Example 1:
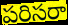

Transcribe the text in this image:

పరిసరా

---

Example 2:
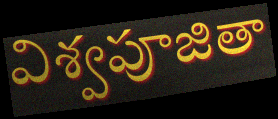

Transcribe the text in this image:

విశ్వపూజితా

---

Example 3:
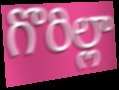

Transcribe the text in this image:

గొరిల్లా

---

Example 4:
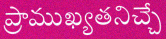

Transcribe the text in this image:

ప్రాముఖ్యతనిచ్చే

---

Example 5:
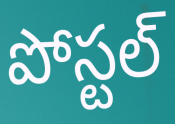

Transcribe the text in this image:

పోస్టల్